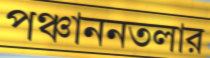
পঞ্চাননতলার